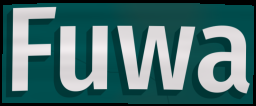
Fuwa